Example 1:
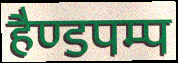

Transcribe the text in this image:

हैण्डपम्प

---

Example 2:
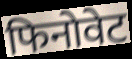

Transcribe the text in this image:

फिनोवेट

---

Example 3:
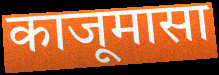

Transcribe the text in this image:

काजूमासा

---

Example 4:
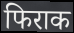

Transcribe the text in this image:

फिराक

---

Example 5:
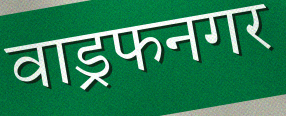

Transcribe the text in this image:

वाड्रफनगर